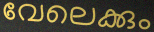
വേലെക്കും